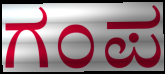
ಗಂಪ